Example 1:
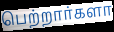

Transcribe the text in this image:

பெற்றார்களா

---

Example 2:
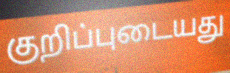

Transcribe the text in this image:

குறிப்புடையது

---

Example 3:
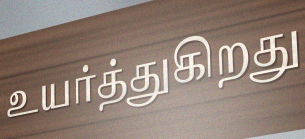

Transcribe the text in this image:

உயர்த்துகிறது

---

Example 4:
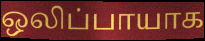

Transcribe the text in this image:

ஒலிப்பாயாக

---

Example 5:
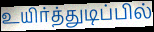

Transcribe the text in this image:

உயிர்த்துடிப்பில்